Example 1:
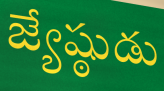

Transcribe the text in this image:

జ్యేష్ఠుడు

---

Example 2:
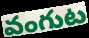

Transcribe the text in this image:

వంగుట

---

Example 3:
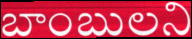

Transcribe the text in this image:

బాంబులని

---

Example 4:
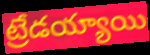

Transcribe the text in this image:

ట్రేడయ్యాయి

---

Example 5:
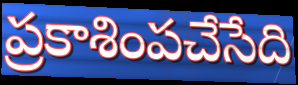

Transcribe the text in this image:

ప్రకాశింపచేసేది